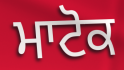
ਮਾਟੋਕ